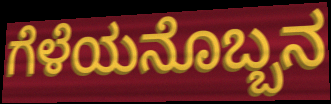
ಗೆಳೆಯನೊಬ್ಬನ